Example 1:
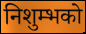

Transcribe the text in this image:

निशुम्भको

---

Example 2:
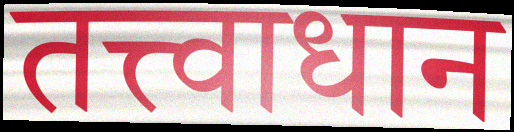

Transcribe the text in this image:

तत्त्वाधान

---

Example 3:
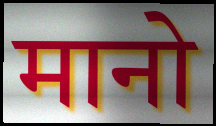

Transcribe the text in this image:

मानो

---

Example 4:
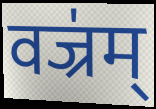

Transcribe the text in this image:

वज्र॑म्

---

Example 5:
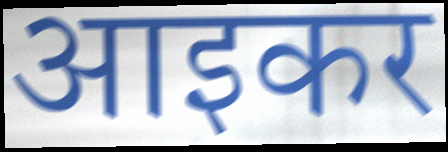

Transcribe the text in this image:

आइकर